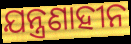
ଯନ୍ତ୍ରଣାହୀନ